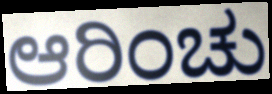
ಆರಿಂಚು